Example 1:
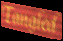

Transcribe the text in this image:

Tangled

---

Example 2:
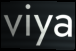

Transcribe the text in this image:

viya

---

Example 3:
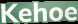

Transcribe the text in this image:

Kehoe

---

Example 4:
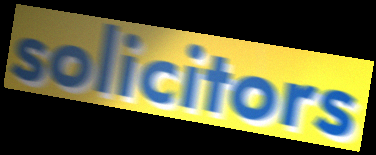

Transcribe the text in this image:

solicitors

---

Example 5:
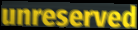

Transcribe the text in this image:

unreserved